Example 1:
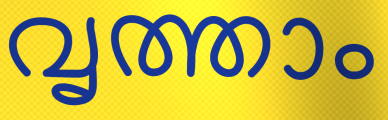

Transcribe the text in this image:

വൃത്താം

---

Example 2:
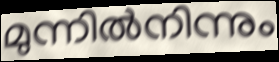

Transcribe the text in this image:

മുന്നിൽനിന്നും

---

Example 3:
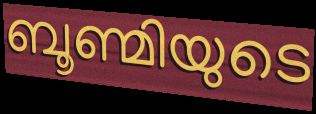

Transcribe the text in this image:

ബൂണ്മിയുടെ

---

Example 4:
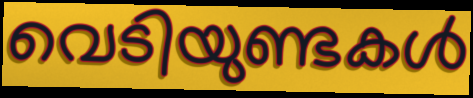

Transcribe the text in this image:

വെടിയുണ്ടകൾ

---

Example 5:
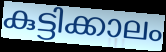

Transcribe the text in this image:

കുട്ടിക്കാലം